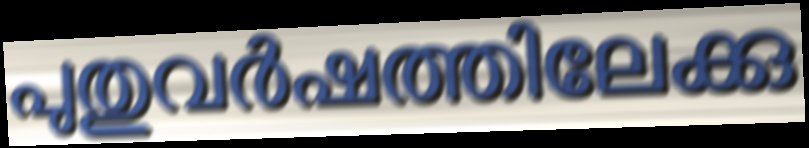
പുതുവർഷത്തിലേക്കു